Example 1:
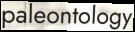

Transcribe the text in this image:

paleontology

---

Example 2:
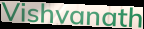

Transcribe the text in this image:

Vishvanath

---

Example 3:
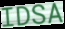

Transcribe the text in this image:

IDSA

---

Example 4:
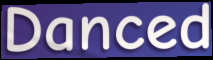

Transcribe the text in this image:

Danced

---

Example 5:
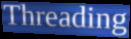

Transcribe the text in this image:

Threading